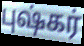
புஷ்கர்